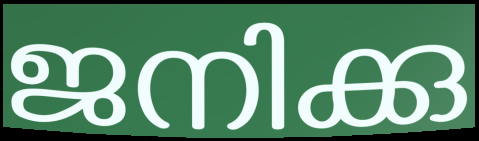
ജനിക്കു